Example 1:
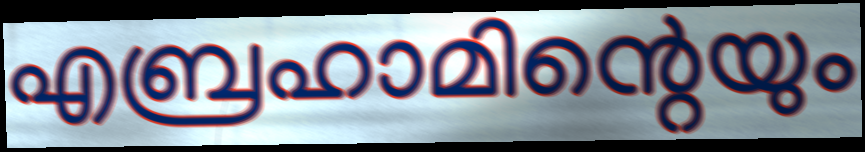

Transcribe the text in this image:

എബ്രഹാമിന്റെയും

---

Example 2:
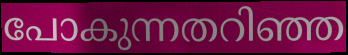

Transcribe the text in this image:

പോകുന്നതറിഞ്ഞ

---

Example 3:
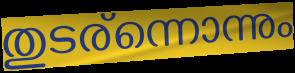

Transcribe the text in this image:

തുടര്ന്നൊന്നും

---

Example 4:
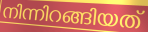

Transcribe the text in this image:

നിന്നിറങ്ങിയത്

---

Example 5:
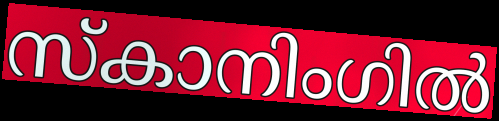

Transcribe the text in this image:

സ്കാനിംഗിൽ